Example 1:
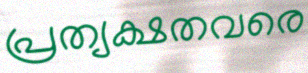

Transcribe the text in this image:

പ്രത്യക്ഷതവരെ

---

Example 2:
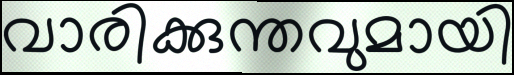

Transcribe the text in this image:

വാരിക്കുന്തവുമായി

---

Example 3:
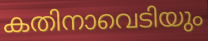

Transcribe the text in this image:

കതിനാവെടിയും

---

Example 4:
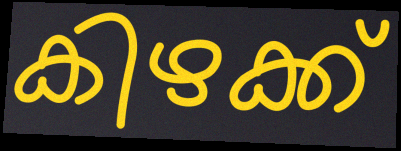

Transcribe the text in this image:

കിഴക്ക്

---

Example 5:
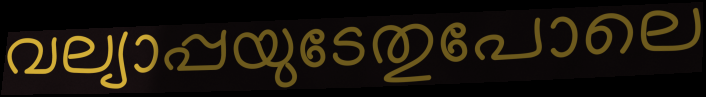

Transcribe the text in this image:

വല്യാപ്പയുടേതുപോലെ